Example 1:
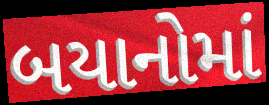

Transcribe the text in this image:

બયાનોમાં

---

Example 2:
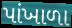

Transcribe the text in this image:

પાંખાળા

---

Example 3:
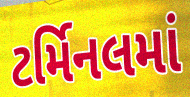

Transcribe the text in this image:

ટર્મિનલમાં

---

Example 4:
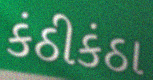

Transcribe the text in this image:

કંઠીકંઠા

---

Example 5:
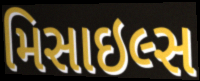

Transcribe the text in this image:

મિસાઇલ્સ